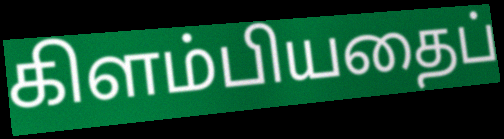
கிளம்பியதைப்